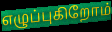
எழுப்புகிறோம்